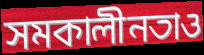
সমকালীনতাও